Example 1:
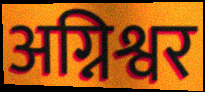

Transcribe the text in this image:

अग्निश्वर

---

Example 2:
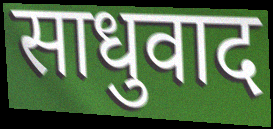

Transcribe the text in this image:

साधुवाद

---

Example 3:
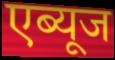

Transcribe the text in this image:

एब्यूज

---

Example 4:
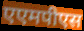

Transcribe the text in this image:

एएमपीएस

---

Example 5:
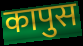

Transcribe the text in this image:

कापुस